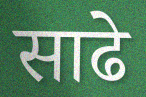
साढे